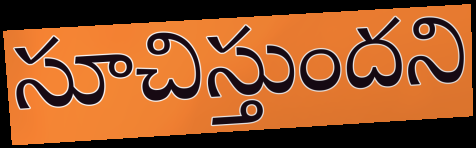
సూచిస్తుందని